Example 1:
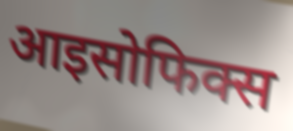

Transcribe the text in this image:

आइसोफिक्स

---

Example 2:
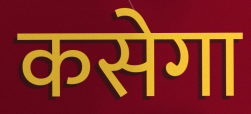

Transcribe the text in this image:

कसेगा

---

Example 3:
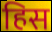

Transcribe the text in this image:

हिस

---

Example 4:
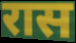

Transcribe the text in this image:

रास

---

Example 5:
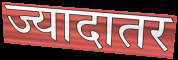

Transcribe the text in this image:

ज्‍यादातर